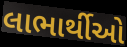
લાભાર્થીઓ